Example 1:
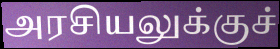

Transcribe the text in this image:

அரசியலுக்குச்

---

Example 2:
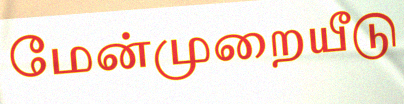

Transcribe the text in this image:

மேன்முறையீடு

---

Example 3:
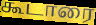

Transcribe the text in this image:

கூடாரை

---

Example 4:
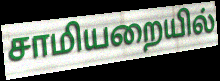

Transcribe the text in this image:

சாமியறையில்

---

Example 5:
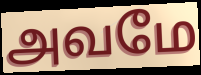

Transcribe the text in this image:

அவமே